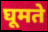
घूमते